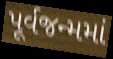
પૂર્વજન્મમાં